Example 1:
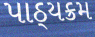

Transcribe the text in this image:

પાઠ્યક્રમ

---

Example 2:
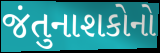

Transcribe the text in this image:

જંતુનાશકોનો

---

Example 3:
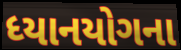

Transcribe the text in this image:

ધ્યાનયોગના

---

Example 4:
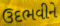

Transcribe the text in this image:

ઉદભવીને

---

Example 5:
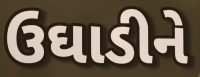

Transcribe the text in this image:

ઉઘાડીને